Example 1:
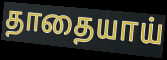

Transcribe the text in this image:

தாதையாய்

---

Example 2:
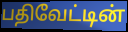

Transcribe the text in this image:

பதிவேட்டின்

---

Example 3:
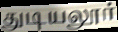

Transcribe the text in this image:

துடியலூர்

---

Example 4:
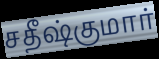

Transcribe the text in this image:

சதீஷ்குமார்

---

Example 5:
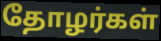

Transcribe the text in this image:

தோழர்கள்